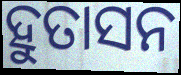
ହୁତାସନ